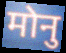
मोनु